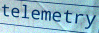
telemetry